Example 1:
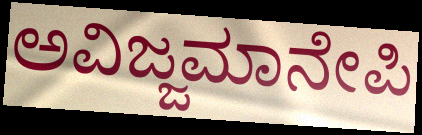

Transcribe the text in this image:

ಅವಿಜ್ಜಮಾನೇಪಿ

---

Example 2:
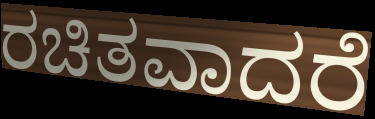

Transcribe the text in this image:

ರಚಿತವಾದರೆ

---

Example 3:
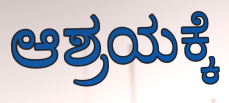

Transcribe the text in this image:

ಆಶ್ರಯಕ್ಕೆ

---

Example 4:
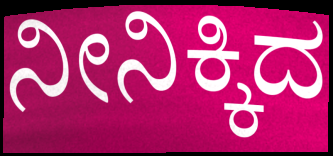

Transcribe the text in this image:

ನೀನಿಕ್ಕಿದ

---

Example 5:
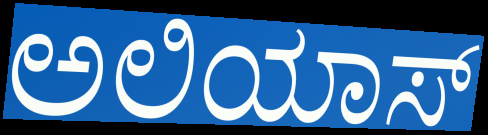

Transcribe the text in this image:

ಅಲಿಯಾಸ್